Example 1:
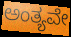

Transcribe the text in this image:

ಅಂತ್ಯವೇ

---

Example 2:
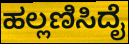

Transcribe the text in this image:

ಹಲ್ಲಣಿಸಿದೈ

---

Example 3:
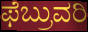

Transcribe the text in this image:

ಫೆಬ್ರುವರಿ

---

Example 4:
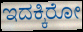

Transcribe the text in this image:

ಇದಕ್ಕಿರೋ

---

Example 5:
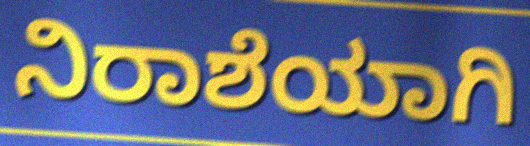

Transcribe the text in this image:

ನಿರಾಶೆಯಾಗಿ